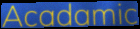
Acadamic